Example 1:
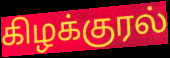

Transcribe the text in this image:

கிழக்குரல்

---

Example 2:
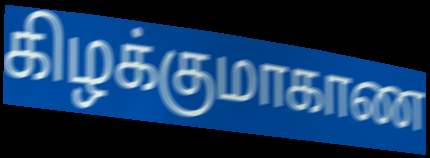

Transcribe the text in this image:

கிழக்குமாகாண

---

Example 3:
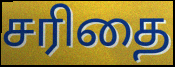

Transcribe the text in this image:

சரிதை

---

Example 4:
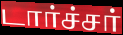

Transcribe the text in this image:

டார்ச்சர்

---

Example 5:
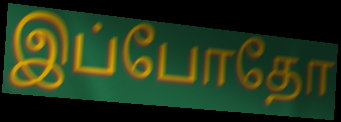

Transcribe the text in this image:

இப்போதோ